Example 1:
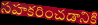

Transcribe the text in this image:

సహకరించడానికి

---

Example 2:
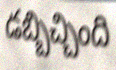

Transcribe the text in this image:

డబ్బిచ్చింది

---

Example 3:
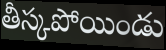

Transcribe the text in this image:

తీస్కపోయిండు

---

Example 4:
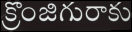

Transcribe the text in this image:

క్రొంజిగురాకు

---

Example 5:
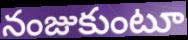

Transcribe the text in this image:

నంజుకుంటూ